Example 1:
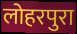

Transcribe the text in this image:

लोहरपुरा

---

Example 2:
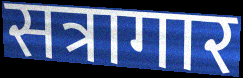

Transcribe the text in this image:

सत्रागार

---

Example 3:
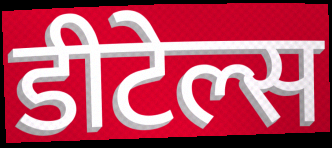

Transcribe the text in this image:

डीटेल्‍स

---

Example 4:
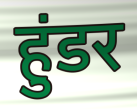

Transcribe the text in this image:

हुंडर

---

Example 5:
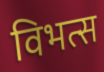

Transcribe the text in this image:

विभत्स